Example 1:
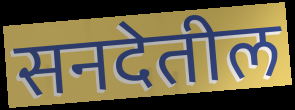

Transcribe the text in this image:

सनदेतील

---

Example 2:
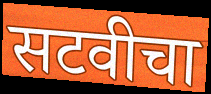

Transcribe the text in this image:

सटवीचा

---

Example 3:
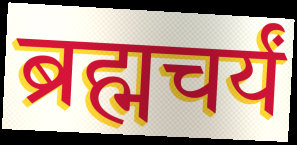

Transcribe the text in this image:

ब्रह्मचर्यं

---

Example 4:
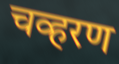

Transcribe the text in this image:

चव्हरण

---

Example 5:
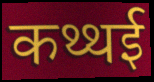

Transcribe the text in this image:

कथ्थई